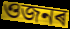
ওজনৰ